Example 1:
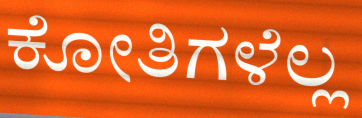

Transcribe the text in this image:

ಕೋತಿಗಳೆಲ್ಲ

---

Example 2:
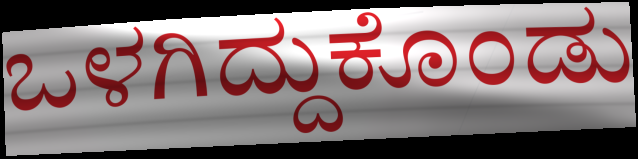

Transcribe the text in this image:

ಒಳಗಿದ್ದುಕೊಂಡು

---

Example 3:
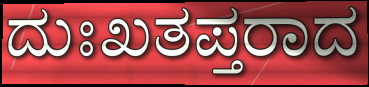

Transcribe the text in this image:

ದುಃಖತಪ್ತರಾದ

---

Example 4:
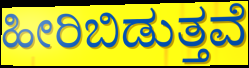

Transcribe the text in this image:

ಹೀರಿಬಿಡುತ್ತವೆ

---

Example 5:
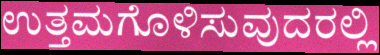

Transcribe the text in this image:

ಉತ್ತಮಗೊಳಿಸುವುದರಲ್ಲಿ